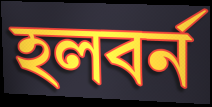
হলবর্ন